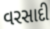
વરસાદી